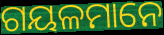
ଗୟଳମାନେ